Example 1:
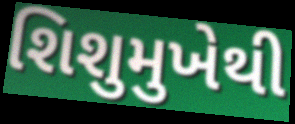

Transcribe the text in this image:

શિશુમુખેથી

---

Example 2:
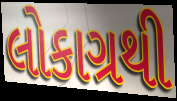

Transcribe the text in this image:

લોકાગ્રથી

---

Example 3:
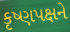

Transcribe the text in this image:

કૃષ્ણપક્ષને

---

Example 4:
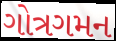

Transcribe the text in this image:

ગોત્રગમન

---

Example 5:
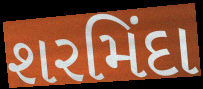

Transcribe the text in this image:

શરમિંદા